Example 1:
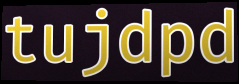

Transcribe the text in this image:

tujdpd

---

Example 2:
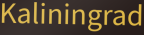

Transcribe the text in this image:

Kaliningrad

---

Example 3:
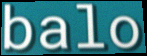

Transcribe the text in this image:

balo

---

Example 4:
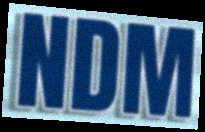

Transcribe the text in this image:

NDM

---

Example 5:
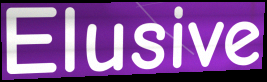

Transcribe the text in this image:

Elusive